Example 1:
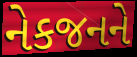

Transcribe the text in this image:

નેકજનને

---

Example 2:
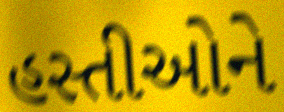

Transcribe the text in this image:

હસ્તીઓને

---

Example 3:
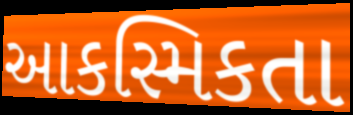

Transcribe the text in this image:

આકસ્મિકતા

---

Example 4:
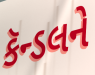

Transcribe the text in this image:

કૅન્ડલને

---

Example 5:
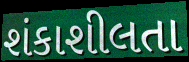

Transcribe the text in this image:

શંકાશીલતા